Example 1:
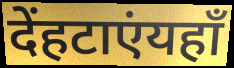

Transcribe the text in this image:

देंहटाएंयहाँ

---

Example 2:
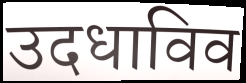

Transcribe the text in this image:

उदधाविव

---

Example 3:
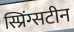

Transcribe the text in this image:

स्प्रिंग्सटीन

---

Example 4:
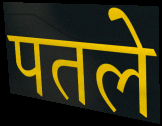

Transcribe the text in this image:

पतले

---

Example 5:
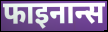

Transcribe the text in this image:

फाइनान्स